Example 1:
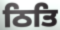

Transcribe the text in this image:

ਠਿਤਿ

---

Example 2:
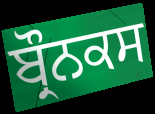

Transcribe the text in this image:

ਬ੍ਰੌਨਕਸ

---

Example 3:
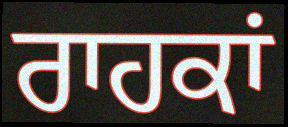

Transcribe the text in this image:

ਰਾਹਕਾਂ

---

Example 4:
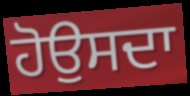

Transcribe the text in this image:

ਹੋਉਸਦਾ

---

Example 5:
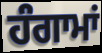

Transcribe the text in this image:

ਹੰਗਾਮਾਂ